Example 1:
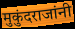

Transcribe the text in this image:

मुकुंदराजांनी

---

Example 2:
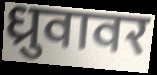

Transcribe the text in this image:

ध्रुवावर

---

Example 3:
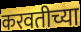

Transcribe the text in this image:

करवतीच्या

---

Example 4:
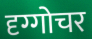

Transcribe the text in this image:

दृग्गोचर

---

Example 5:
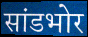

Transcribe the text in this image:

सांडभोर